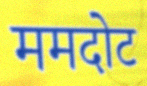
ममदोट